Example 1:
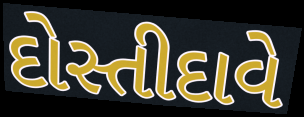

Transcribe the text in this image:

દોસ્તીદાવે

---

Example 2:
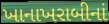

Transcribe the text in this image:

ખાનાખરાબીનાં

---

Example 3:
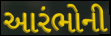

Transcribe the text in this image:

આરંભોની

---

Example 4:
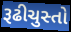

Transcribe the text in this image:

રૂઢીચુસ્તો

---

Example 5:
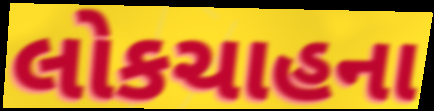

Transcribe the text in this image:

લોકચાહના